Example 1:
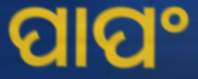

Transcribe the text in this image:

ପାପଂ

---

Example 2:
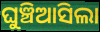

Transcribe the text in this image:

ଘୁଞ୍ଚିଆସିଲା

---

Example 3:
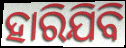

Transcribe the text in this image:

ହାରିଯିବି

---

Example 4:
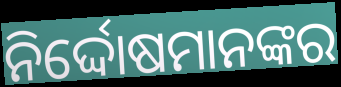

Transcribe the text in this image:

ନିର୍ଦ୍ଦୋଷମାନଙ୍କର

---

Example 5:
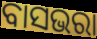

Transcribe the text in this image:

ବାସଭରା